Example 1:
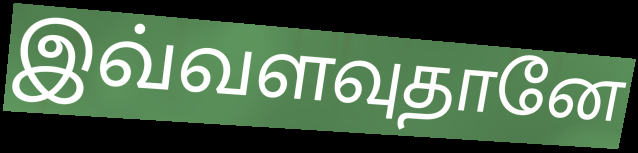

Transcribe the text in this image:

இவ்வளவுதானே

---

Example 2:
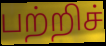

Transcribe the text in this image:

பற்றிச்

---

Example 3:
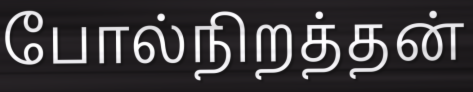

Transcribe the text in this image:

போல்நிறத்தன்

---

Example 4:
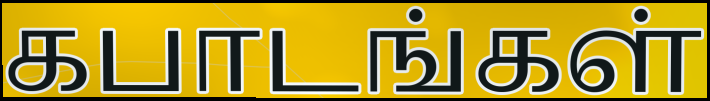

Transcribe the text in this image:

கபாடங்கள்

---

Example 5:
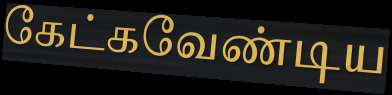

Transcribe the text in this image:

கேட்கவேண்டிய